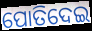
ପୋତିଦେଇ